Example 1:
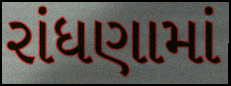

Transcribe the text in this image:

રાંધણામાં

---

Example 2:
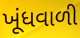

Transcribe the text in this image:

ખૂંધવાળી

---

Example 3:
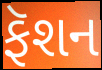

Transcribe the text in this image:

ફૅશન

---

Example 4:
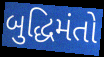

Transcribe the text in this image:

બુદ્ધિમંતો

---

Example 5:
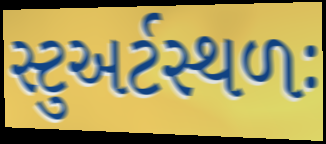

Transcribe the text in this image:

સ્ટુઅર્ટસ્થળઃ